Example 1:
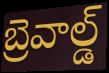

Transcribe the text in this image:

బ్రెవాల్డ్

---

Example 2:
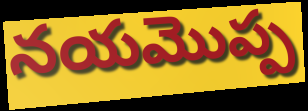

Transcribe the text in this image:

నయమొప్ప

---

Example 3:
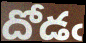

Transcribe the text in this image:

దోడఁ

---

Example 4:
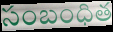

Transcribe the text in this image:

సంబంధిత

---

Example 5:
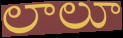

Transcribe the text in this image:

లాలూ